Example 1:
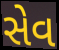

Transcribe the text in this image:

સેવ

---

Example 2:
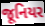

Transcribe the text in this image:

જૂનિયર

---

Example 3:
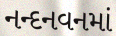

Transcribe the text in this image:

નન્દનવનમાં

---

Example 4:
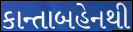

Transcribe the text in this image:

કાન્તાબહેનથી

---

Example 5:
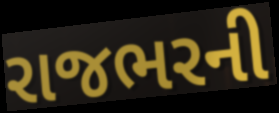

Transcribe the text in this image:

રાજભરની